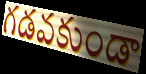
గడవకుండా